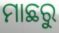
ମାଛରୁ